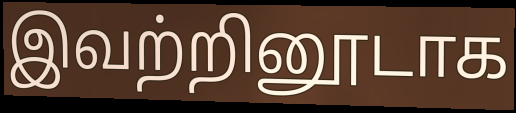
இவற்றினூடாக